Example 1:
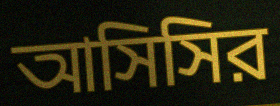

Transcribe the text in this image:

আসিসির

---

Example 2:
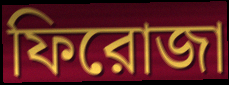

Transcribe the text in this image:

ফিরোজা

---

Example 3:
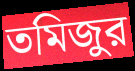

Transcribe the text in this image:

তমিজুর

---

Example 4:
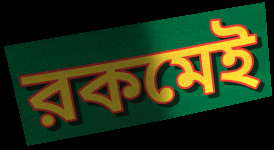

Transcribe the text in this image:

রকমেই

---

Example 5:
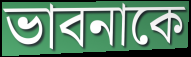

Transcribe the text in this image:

ভাবনাকে